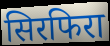
सिरफिरा